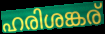
ഹരിശങ്കര്